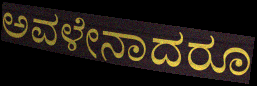
ಅವಳೇನಾದರೂ